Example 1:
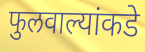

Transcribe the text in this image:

फुलवाल्यांकडे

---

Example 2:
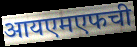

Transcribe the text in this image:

आयएमएफची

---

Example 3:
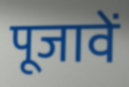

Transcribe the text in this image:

पूजावें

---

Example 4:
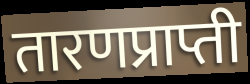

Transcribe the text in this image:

तारणप्राप्ती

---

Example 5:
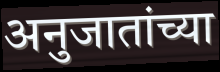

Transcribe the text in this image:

अनुजातांच्या